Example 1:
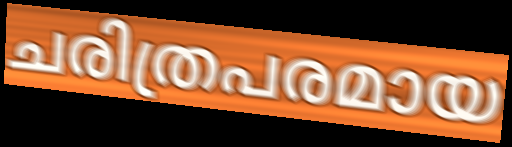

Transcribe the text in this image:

ചരിത്രപരമായ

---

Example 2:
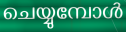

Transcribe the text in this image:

ചെയ്യുമ്പോൾ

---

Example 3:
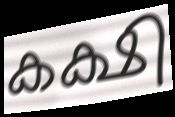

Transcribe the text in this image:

കക്ഷി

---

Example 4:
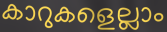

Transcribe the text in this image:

കാറുകളെല്ലാം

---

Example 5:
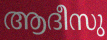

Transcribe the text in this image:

ആദീസു